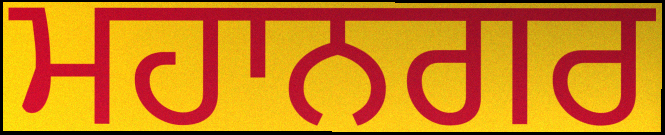
ਮਹਾਨਗਰ